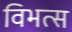
विभत्स